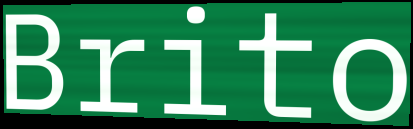
Brito